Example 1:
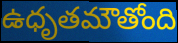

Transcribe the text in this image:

ఉధృతమౌతోంది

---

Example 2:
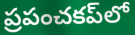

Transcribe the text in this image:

ప్రపంచకప్‌లో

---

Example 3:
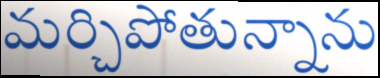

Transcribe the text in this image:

మర్చిపోతున్నాను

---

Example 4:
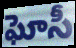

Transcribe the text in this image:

ఘోసీ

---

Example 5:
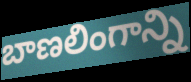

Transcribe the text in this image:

బాణలింగాన్ని